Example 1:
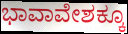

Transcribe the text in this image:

ಭಾವಾವೇಶಕ್ಕೂ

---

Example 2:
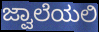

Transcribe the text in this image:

ಜ್ವಾಲೆಯಲಿ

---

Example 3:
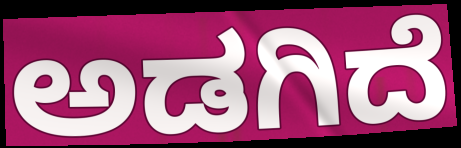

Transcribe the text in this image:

ಅಡಗಿದೆ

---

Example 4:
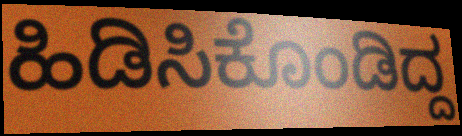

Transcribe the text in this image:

ಹಿಡಿಸಿಕೊಂಡಿದ್ದ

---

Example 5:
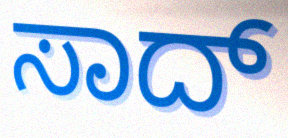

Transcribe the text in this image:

ಸಾದ್